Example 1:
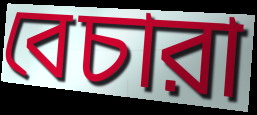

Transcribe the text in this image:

বেচারা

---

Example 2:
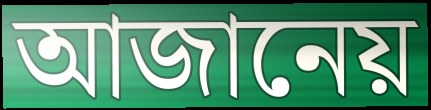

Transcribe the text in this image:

আজানেয়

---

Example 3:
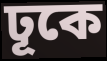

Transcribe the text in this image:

ঢূকে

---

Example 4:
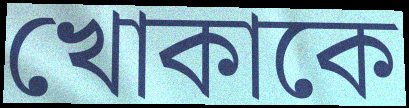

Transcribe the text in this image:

খোকাকে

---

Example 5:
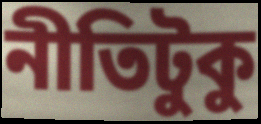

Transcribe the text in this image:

নীতিটুকু